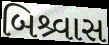
બિશ્ર્વાસ